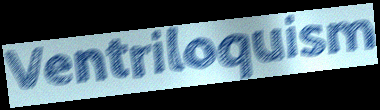
Ventriloquism